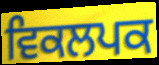
ਵਿਕਲਪਕ